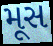
મૂસ